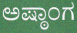
ಅಷ್ಠಾಂಗ